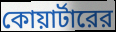
কোয়ার্টারের